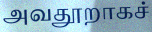
அவதூறாகச்